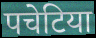
पचेटिया